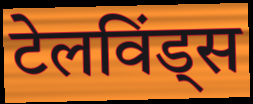
टेलविंड्स